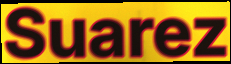
Suarez